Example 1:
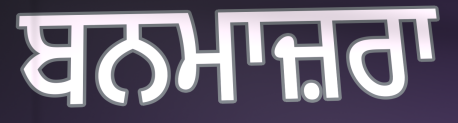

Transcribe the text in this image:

ਬਨਮਾਜ਼ਰਾ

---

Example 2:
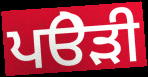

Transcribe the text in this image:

ਪੳੇੜੀ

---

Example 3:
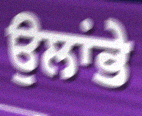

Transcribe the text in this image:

ਉਲਾਂਭੇ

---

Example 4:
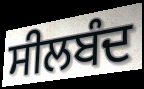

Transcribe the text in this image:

ਸੀਲਬੰਦ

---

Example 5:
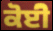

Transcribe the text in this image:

ਕੋਈੋ